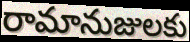
రామానుజులకు